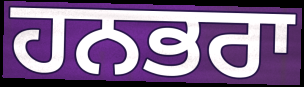
ਹਨਭਰਾ